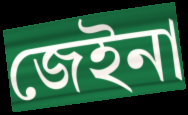
জেইনা